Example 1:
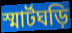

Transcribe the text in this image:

স্মার্টঘড়ি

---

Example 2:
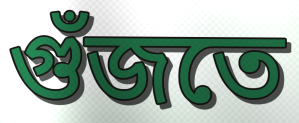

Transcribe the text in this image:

গুঁজতে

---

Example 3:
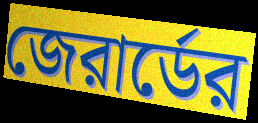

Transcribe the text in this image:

জেরার্ডের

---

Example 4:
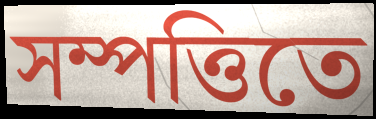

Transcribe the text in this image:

সম্পত্তিতে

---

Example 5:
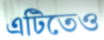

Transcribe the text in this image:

এটিতেও